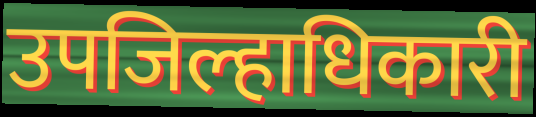
उपजिल्हाधिकारी